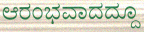
ಆರಂಭವಾದದ್ದೂ